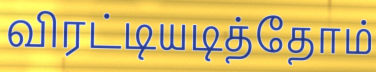
விரட்டியடித்தோம்